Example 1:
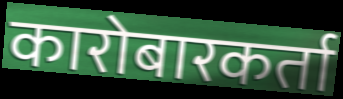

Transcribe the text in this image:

कारोबारकर्ता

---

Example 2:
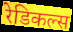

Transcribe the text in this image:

रेडिकल्स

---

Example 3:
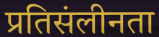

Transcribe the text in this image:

प्रतिसंलीनता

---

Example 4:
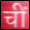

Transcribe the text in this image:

चीं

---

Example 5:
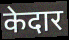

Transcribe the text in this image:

केदार